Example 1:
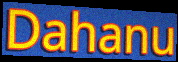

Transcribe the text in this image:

Dahanu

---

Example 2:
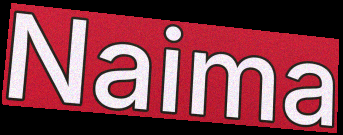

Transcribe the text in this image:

Naima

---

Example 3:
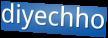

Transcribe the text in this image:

diyechho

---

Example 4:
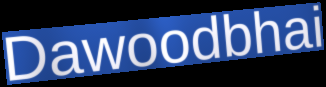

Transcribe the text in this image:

Dawoodbhai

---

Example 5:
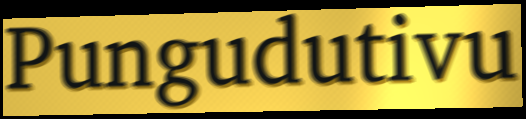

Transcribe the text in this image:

Pungudutivu